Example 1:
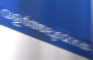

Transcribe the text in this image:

വളർത്തലുമൊക്കെ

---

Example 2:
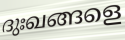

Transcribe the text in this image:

ദുഃഖങ്ങളെ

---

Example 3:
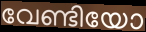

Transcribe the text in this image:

വേണ്ടിയോ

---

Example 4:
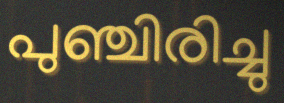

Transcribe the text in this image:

പുഞ്ചിരിച്ചു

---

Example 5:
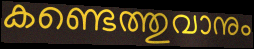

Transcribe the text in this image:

കണ്ടെത്തുവാനും